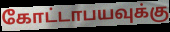
கோட்டாபயவுக்கு